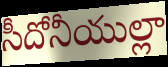
సీదోనీయుల్లా